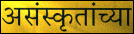
असंस्कृतांच्या